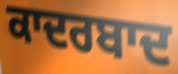
ਕਾਦਰਬਾਦ